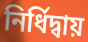
নির্ধিদ্বায়